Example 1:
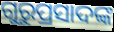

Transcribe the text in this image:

ଗୁରୁପ୍ରସାଦଙ୍କ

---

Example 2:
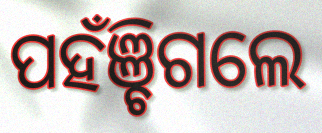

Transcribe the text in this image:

ପହଁଞ୍ଚିଗଲେ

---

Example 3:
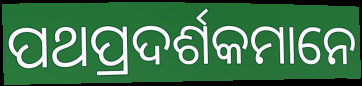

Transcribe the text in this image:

ପଥପ୍ରଦର୍ଶକମାନେ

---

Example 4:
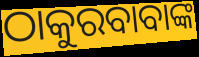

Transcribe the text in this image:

ଠାକୁରବାବାଙ୍କ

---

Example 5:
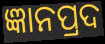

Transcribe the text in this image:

ଜ୍ଞାନପ୍ରଦ